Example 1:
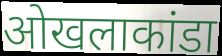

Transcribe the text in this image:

ओखलाकांडा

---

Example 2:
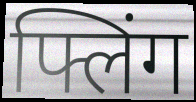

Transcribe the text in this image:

फ्लिंग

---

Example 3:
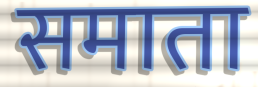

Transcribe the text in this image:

समाता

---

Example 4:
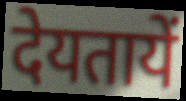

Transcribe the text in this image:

देयतायें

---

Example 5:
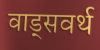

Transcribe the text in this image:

वाड्सवर्थ